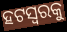
ହଟସ୍ଵରକୁ